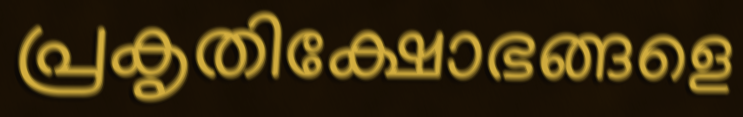
പ്രകൃതിക്ഷോഭങ്ങളെ